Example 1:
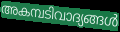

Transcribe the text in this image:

അകമ്പടിവാദ്യങ്ങൾ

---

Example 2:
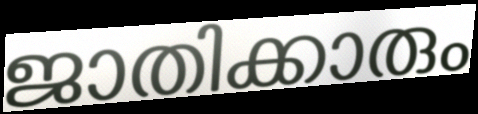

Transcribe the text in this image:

ജാതിക്കാരും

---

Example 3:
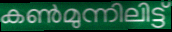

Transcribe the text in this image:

കൺമുന്നിലിട്ട്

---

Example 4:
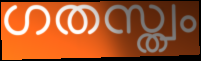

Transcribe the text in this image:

ഗതസ്ത്വം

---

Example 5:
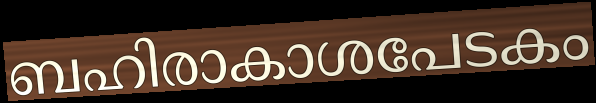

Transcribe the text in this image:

ബഹിരാകാശപേടകം